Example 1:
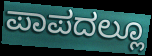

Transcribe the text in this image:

ಪಾಪದಲ್ಲೂ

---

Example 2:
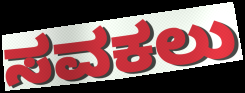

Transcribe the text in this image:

ಸವಕಲು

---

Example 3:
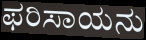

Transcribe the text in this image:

ಫರಿಸಾಯನು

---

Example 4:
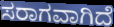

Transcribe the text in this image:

ಸರಾಗವಾಗಿದೆ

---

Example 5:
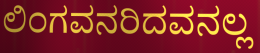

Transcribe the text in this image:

ಲಿಂಗವನರಿದವನಲ್ಲ